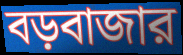
বড়বাজার